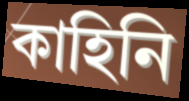
কাহিনি